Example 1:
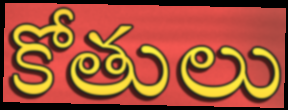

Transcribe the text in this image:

కోతులు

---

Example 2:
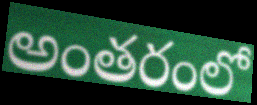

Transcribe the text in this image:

అంతరంలో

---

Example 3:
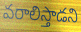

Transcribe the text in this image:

వరాలిస్తాడని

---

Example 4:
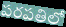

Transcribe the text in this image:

పరపతిలో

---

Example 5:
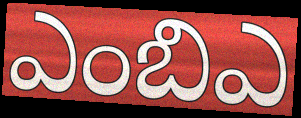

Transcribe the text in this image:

ఎంబిఎ